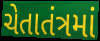
ચેતાતંત્રમાં